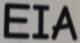
EIA